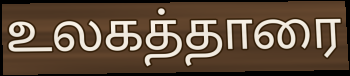
உலகத்தாரை